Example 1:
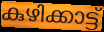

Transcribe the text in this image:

കുഴിക്കാട്ട്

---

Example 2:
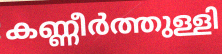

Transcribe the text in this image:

കണ്ണീർത്തുള്ളി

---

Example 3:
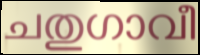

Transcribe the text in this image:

ചതുഗാവീ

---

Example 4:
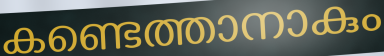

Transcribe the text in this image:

കണ്ടെത്താനാകും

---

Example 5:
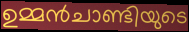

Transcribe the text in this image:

ഉമ്മൻചാണ്ടിയുടെ